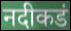
नदीकडं